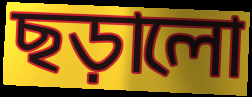
ছড়ালো